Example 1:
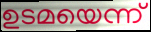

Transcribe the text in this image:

ഉടമയെന്ന്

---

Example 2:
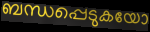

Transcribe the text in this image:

ബന്ധപ്പെടുകയോ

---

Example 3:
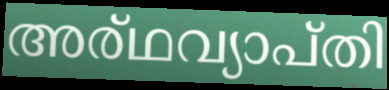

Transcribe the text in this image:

അര്ഥവ്യാപ്തി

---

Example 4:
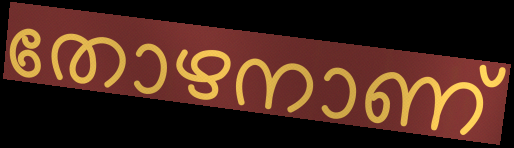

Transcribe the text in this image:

തോഴനാണ്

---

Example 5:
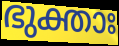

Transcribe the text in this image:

ഭുക്താഃ